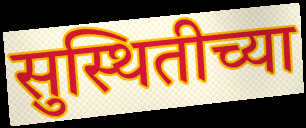
सुस्थितीच्या